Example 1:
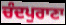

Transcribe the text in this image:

ਚੰਦਪੁਰਾਣਾ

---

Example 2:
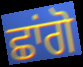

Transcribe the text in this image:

ਛਾਂਗੋ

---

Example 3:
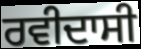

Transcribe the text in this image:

ਰਵੀਦਾਸੀ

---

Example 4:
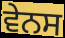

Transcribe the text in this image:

ਵੇਨਸ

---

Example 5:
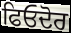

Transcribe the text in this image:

ਫਿਓਦੋਰ